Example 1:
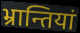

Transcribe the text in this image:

भ्रान्तियां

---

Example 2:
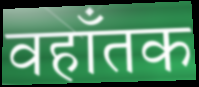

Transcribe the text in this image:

वहाँतक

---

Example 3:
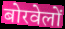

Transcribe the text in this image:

बोरवेलों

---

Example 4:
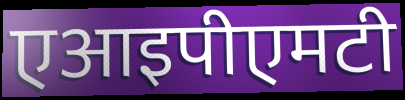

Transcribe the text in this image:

एआइपीएमटी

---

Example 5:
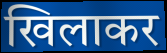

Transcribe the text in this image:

खिलाकर